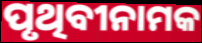
ପୃଥିବୀନାମକ